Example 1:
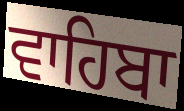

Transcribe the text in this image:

ਵਾਹਿਬਾ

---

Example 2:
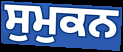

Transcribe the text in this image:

ਸੁਮੁਕਨ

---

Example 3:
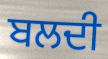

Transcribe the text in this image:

ਬਲਦੀ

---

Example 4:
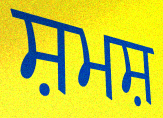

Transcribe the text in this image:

ਸ਼ਮਸ਼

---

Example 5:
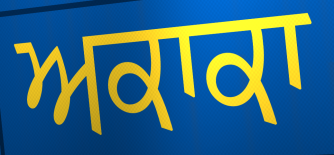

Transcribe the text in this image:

ਅਕਾਕਾ